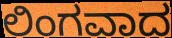
ಲಿಂಗವಾದ